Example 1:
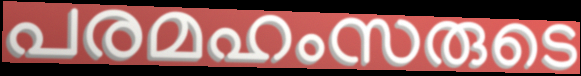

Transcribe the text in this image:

പരമഹംസരുടെ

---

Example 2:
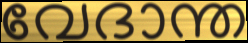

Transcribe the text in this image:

വേദാന്ത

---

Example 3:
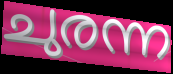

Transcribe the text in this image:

ചുരന്ന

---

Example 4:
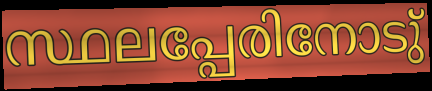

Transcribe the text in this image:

സ്ഥലപ്പേരിനോടു്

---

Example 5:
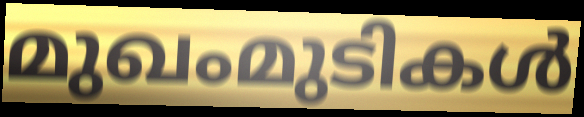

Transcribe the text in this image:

മുഖംമുടികൾ